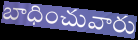
బాధించువారు